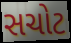
સચોટ